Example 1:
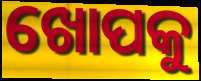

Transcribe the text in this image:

ଖୋପକୁ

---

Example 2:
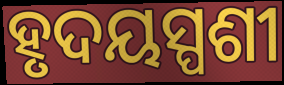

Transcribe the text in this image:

ହୃଦୟସ୍ପଶୀ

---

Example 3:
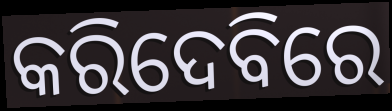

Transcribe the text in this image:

କରିଦେବିରେ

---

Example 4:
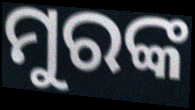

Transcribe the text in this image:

ମୁରଙ୍କ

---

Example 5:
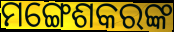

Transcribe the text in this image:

ମଙ୍ଗେଶକରଙ୍କ